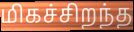
மிகச்சிறந்த